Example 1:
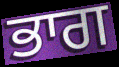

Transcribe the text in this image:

ਭਾਗ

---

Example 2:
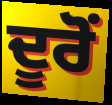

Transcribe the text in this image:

ਦੂਰੋਂ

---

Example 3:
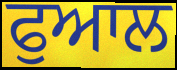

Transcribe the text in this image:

ਫੁਆਲ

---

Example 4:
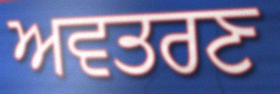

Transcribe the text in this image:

ਅਵਤਰਣ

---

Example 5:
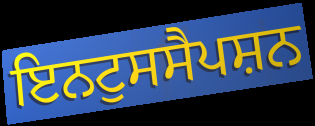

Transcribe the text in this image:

ਇਨਟੁਸਸੈਪਸ਼ਨ